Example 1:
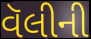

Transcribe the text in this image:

વૅલીની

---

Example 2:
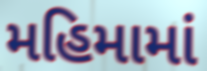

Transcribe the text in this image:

મહિમામાં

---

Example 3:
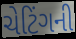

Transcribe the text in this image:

ચેટિંગની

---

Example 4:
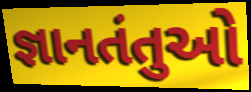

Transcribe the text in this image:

જ્ઞાનતંતુઓ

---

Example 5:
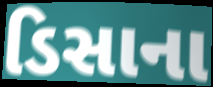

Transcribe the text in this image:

ડિસાના